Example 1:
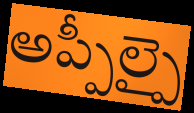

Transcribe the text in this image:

అప్పీల్పై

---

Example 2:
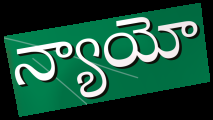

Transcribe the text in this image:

న్యాయో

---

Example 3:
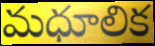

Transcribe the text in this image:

మధూలిక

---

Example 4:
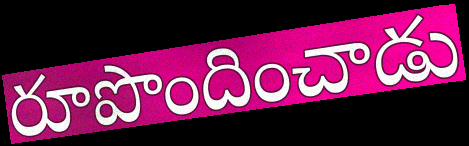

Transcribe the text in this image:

రూపొందించాడు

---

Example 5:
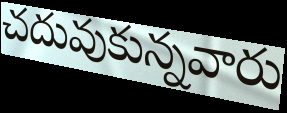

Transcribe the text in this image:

చదువుకున్నవారు